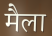
मैला